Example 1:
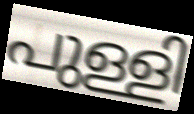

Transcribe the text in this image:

പുള്ളി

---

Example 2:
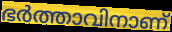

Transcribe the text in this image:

ഭർത്താവിനാണ്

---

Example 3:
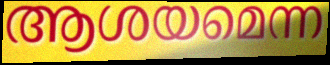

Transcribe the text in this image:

ആശയമെന്ന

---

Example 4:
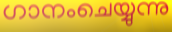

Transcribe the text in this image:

ഗാനംചെയ്യുന്നു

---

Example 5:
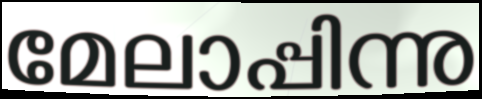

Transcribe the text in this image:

മേലാപ്പിന്നു